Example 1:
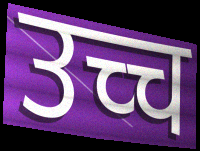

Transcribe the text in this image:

उच्‍च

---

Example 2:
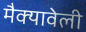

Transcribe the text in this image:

मैक्यावेली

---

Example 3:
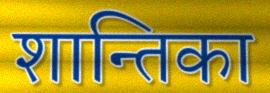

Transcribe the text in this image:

शान्तिका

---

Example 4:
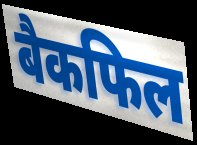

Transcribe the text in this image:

बैकफिल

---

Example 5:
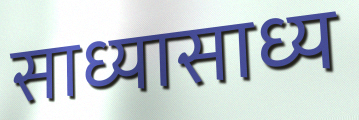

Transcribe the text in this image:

साध्यासाध्य